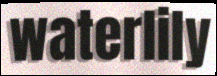
waterlily